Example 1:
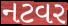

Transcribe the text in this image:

નટવર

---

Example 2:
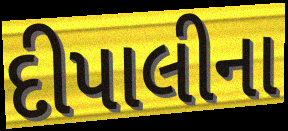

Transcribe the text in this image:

દીપાલીના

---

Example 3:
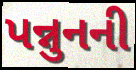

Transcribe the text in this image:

પન્નુનની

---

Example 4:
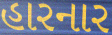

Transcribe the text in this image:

હારનાર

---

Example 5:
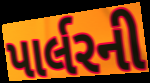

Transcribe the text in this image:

પાર્લરની